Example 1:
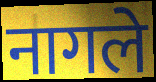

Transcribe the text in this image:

नागले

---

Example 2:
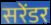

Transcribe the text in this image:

सरेंडर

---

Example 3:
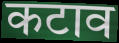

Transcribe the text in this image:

कटाव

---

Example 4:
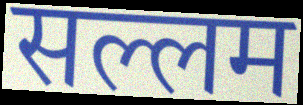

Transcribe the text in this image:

सल्लम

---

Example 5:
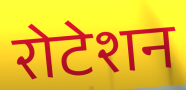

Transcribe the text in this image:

रोटेशन